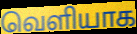
வெளியாக